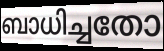
ബാധിച്ചതോ